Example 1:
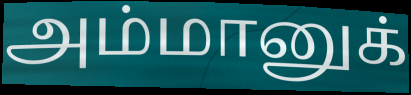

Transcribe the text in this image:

அம்மானுக்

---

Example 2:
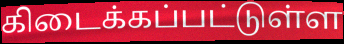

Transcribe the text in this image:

கிடைக்கப்பட்டுள்ள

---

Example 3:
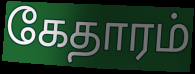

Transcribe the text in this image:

கேதாரம்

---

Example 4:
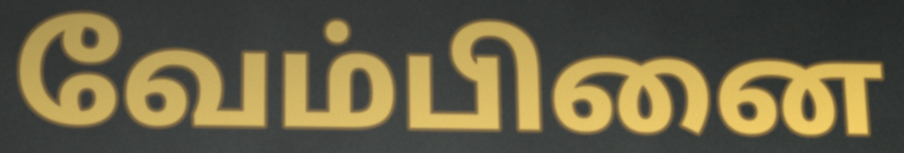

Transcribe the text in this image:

வேம்பினை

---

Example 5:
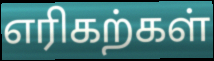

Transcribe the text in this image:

எரிகற்கள்